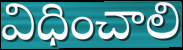
విధించాలి